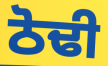
ਠੋਢੀ